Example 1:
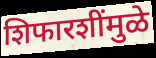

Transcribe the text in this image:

शिफारशींमुळे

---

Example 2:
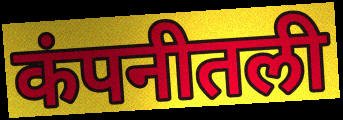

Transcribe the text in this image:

कंपनीतली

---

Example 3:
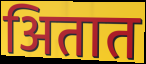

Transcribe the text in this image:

अितात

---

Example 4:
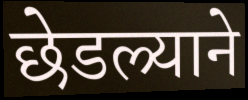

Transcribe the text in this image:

छेडल्याने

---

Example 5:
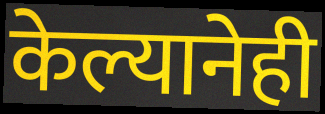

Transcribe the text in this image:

केल्यानेही